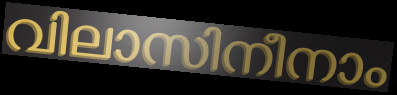
വിലാസിനീനാം